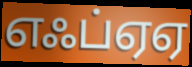
எஃப்ஏஏ